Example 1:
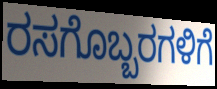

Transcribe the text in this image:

ರಸಗೊಬ್ಬರಗಳಿಗೆ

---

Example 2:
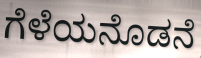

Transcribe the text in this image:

ಗೆಳೆಯನೊಡನೆ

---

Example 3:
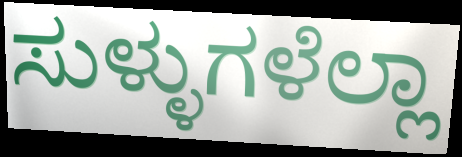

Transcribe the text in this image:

ಸುಳ್ಳುಗಳೆಲ್ಲಾ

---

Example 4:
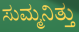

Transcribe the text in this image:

ಸುಮ್ಮನಿತ್ತು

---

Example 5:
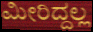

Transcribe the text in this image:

ಮೀರಿದ್ದಲ್ಲ